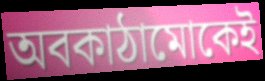
অবকাঠামোকেই